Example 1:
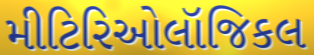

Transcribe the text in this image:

મીટિરિઓલૉજિકલ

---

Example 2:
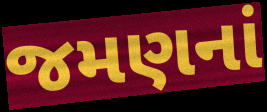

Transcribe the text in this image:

જમણનાં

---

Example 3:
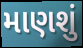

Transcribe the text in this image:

માણશું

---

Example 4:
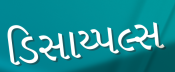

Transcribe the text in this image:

ડિસાય્પલ્સ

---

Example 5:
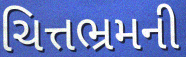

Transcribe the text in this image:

ચિત્તભ્રમની